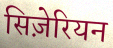
सिज़ेरियन